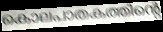
കൊലപാതകത്തിന്റെ